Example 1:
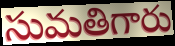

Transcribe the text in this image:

సుమతిగారు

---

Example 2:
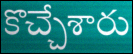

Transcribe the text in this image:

కొచ్చేశారు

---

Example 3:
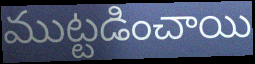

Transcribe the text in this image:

ముట్టడించాయి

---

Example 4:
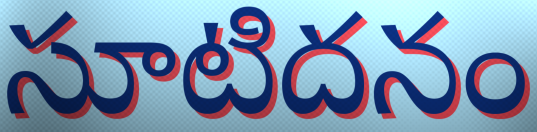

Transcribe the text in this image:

సూటిదనం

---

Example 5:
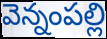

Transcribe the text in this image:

వెన్నంపల్లి